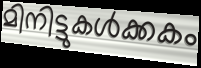
മിനിട്ടുകൾക്കകം